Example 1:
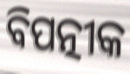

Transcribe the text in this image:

ବିପତ୍ନୀକ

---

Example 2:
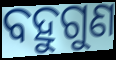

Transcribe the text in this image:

ବହୁଗୁଣ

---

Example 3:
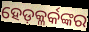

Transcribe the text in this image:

ହେଡ଼କ୍ଳର୍କଙ୍କର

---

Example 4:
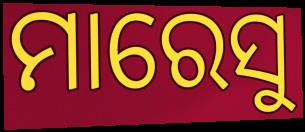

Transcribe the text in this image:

ମାରେସୁ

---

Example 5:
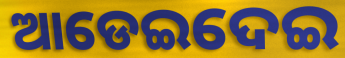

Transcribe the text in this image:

ଆଡେଇଦେଇ